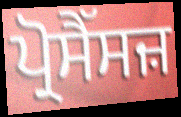
ਪ੍ਰੋਸੈੱਸਜ਼